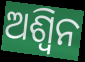
ଅଶ୍ଵିନ